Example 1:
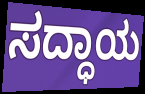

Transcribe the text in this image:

ಸದ್ಧಾಯ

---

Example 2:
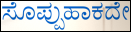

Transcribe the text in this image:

ಸೊಪ್ಪುಹಾಕದೇ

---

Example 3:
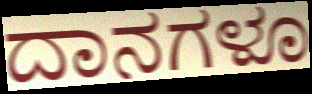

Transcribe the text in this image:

ದಾನಗಳೂ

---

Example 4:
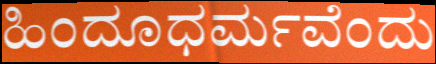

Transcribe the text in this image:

ಹಿಂದೂಧರ್ಮವೆಂದು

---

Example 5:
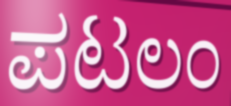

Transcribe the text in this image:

ಪಟಲಂ